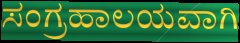
ಸಂಗ್ರಹಾಲಯವಾಗಿ